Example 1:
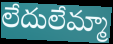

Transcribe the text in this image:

లేదులేమ్మా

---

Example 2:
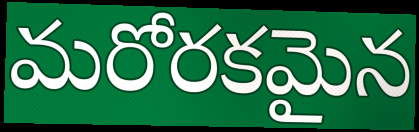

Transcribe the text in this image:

మరోరకమైన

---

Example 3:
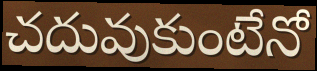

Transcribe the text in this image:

చదువుకుంటేనో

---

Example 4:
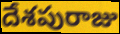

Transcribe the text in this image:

దేశపురాజు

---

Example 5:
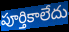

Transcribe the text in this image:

పూర్తికాలేదు